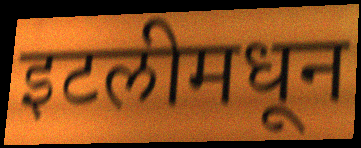
इटलीमधून